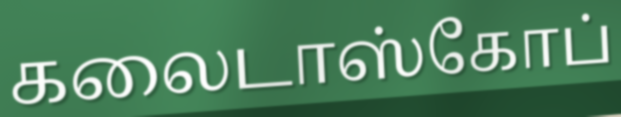
கலைடாஸ்கோப்